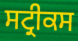
ਸਟ੍ਰੀਕਸ